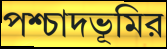
পশ্চাদভূমির